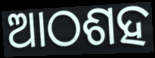
ଆଠଶହ